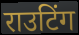
राउटिंग